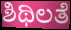
ಶಿಥಿಲತೆ